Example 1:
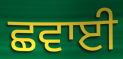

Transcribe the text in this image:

ਛਵਾਈ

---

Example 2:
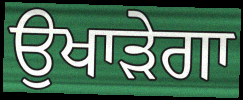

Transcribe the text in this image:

ਉਖਾੜੇਗਾ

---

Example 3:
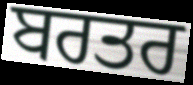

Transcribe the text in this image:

ਬਰਤਰ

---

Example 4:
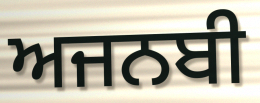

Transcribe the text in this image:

ਅਜਨਬੀ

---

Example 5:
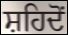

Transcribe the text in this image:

ਸ਼ਹਿਦੋਂ